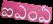
ఐఎంఏ